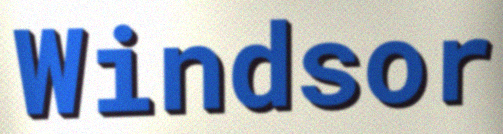
Windsor